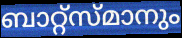
ബാറ്റ്സ്മാനും